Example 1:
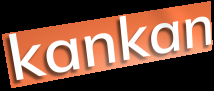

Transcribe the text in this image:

kankan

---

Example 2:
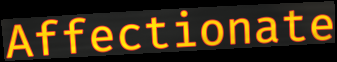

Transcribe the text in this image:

Affectionate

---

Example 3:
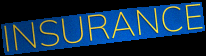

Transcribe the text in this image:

INSURANCE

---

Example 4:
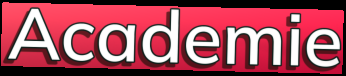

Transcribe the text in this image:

Academie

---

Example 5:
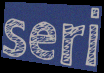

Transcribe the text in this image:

seri